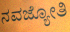
ನವಜ್ಯೋತಿ